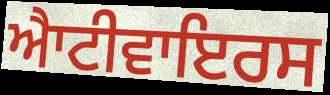
ਐਾਟੀਵਾਇਰਸ